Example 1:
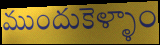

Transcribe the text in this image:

ముందుకెళ్ళాం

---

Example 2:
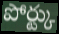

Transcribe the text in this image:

పోర్ట్కు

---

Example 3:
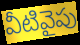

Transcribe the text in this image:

వీటివైపు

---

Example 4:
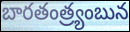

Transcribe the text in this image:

బారతంత్ర్యంబున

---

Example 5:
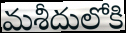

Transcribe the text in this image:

మశీదులోకి